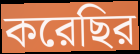
করেছির